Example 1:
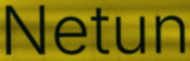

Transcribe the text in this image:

Netun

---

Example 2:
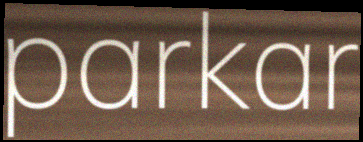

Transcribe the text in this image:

parkar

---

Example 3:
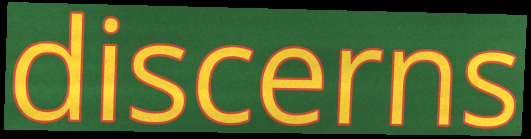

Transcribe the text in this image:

discerns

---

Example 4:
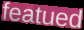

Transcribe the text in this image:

featued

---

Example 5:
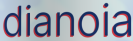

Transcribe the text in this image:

dianoia